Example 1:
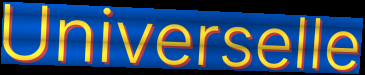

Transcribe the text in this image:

Universelle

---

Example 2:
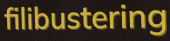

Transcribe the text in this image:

filibustering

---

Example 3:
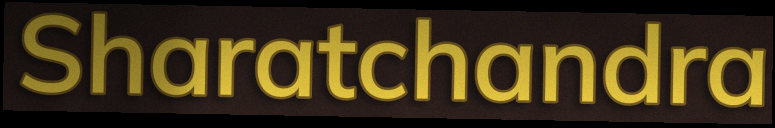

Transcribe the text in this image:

Sharatchandra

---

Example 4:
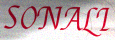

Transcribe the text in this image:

SONALI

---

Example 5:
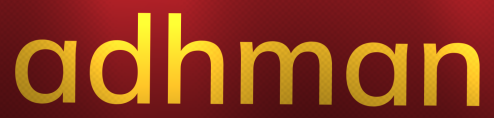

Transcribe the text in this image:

adhman